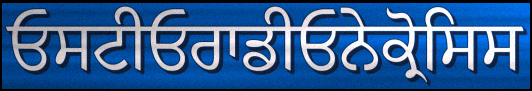
ਓਸਟੀਓਰਾਡੀਓਨੇਕ੍ਰੋਸਿਸ